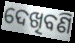
ଦେଖିବଣି